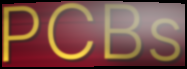
PCBs